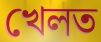
খেলত